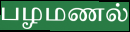
பழமணல்